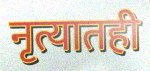
नृत्यातही